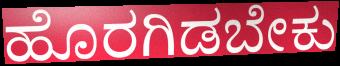
ಹೊರಗಿಡಬೇಕು